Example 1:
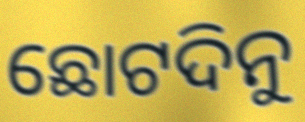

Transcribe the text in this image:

ଛୋଟଦିନୁ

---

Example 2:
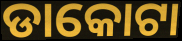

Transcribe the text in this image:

ଡାକୋଟା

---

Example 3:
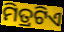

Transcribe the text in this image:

ମିତ୍ରଟିଏ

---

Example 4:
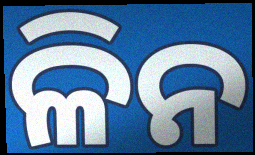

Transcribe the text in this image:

ଳିନ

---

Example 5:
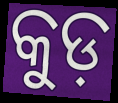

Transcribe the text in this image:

କୁଡ଼